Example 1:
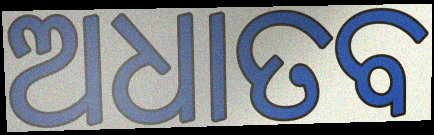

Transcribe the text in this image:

ଅଧାତବ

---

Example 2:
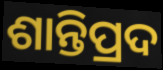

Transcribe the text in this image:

ଶାନ୍ତିପ୍ରଦ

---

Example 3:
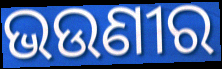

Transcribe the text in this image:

ଭଉଣୀର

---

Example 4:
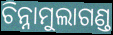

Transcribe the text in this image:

ଚିନ୍ନାମୁଲାଗଣ୍ଡ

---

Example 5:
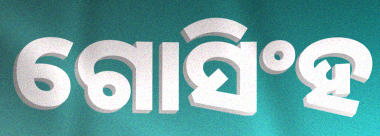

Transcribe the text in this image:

ଗୋସିଂହ